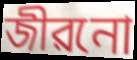
জীৱনো